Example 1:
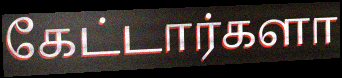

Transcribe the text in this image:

கேட்டார்களா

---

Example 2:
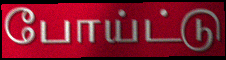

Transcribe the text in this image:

போய்ட்டு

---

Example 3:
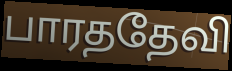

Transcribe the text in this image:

பாரததேவி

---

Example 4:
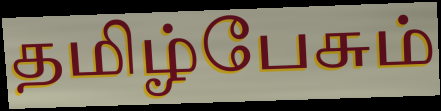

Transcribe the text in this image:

தமிழ்பேசும்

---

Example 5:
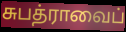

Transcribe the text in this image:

சுபத்ராவைப்